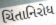
ચિંતાનિરોધ